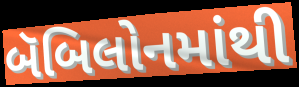
બૅબિલોનમાંથી